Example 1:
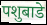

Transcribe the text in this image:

पशुबाडे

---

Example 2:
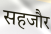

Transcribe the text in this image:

सहजौर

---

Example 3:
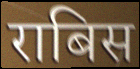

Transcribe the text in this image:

राबिस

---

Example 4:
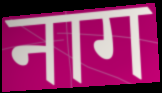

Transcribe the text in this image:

नाग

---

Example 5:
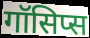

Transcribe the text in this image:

गॉसिप्स